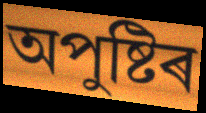
অপুষ্টিৰ